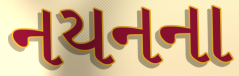
નયનના